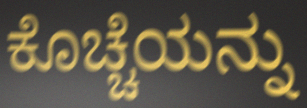
ಕೊಚ್ಚೆಯನ್ನು